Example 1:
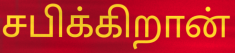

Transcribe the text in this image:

சபிக்கிறான்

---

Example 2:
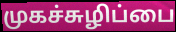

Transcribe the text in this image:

முகச்சுழிப்பை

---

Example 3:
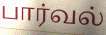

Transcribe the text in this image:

பார்வல்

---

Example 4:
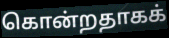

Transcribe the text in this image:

கொன்றதாகக்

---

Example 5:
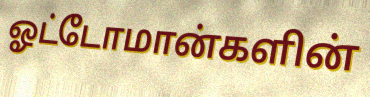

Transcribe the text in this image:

ஓட்டோமான்களின்